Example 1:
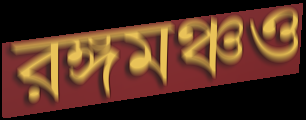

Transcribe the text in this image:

রঙ্গমঞ্চও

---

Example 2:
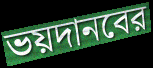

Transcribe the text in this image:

ভয়দানবের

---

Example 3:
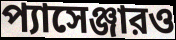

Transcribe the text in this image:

প্যাসেঞ্জারও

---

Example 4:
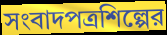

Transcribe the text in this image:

সংবাদপত্রশিল্পের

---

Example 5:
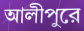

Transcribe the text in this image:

আলীপুরে